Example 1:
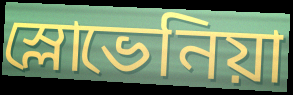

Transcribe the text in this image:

স্লোভেনিয়া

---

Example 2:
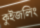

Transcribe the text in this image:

কুইজলিং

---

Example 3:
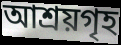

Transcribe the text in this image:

আশ্ৰয়গৃহ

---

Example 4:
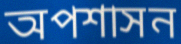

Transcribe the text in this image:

অপশাসন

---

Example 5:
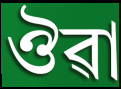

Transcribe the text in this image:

ঔৱা